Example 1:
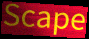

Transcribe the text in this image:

Scape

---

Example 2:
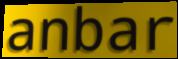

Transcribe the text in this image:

anbar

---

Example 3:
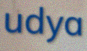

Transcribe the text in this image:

udya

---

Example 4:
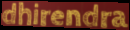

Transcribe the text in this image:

dhirendra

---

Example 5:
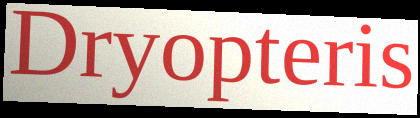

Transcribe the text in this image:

Dryopteris